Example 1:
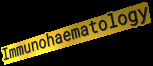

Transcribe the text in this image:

Immunohaematology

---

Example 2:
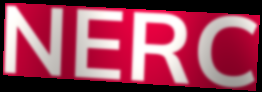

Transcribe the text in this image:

NERC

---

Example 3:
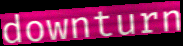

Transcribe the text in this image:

downturn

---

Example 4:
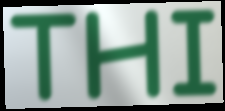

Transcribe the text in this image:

THI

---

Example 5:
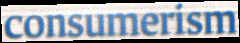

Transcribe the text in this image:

consumerism